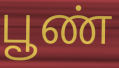
பூண்